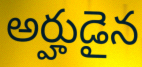
అర్హుడైన